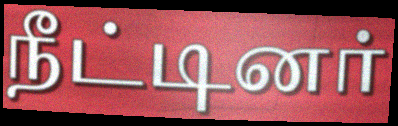
நீட்டினர்